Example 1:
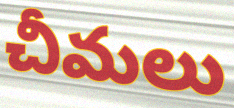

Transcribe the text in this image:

చీమలు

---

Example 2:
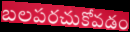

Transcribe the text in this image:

బలపరచుకోవడం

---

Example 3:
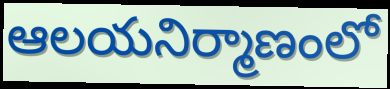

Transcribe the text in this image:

ఆలయనిర్మాణంలో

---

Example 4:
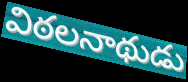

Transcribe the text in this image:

విఠలనాథుడు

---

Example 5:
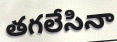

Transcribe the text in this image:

తగలేసినా